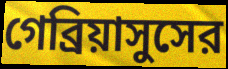
গেব্রিয়াসুসের